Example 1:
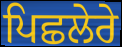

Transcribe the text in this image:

ਪਿਛਲੇਰੇ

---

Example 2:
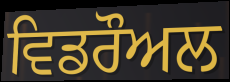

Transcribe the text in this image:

ਵਿਡਰੌਅਲ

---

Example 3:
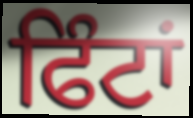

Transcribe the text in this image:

ਫਿੰਟਾਂ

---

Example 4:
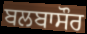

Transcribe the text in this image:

ਬਲਬਾਸੌਰ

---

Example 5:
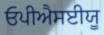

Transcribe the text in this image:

ਓਪੀਐਸਈਯੂ